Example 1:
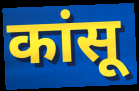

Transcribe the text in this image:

कांसू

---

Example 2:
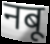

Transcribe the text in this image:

नबू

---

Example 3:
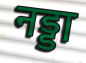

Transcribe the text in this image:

नड्डा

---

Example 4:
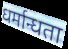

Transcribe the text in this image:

धर्मान्धता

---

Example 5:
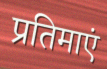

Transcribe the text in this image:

प्रतिमाएं